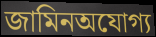
জামিনঅযোগ্য